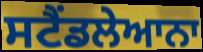
ਸਟੈਂਡਲੇਆਨਾ